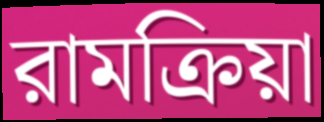
রামক্রিয়া